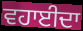
ਵਹਾਈਦਾ